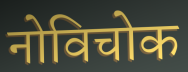
नोविचोक